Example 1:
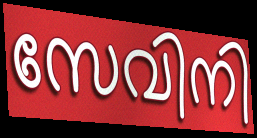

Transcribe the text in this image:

സേവിനി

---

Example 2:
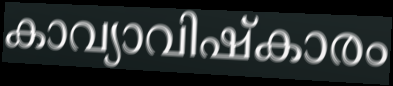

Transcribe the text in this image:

കാവ്യാവിഷ്കാരം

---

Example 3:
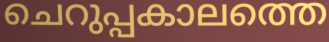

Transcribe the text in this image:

ചെറുപ്പകാലത്തെ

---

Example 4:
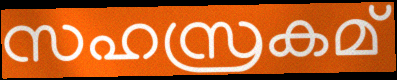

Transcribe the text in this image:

സഹസ്രകമ്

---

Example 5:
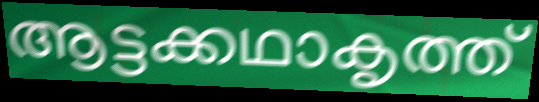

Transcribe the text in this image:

ആട്ടക്കഥാകൃത്ത്